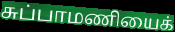
சுப்பாமணியைக்